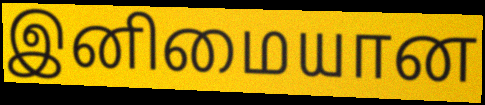
இனிமையான